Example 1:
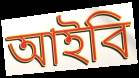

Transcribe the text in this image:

আইবি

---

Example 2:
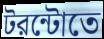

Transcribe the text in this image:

টরন্টোতে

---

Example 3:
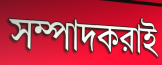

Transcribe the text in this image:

সম্পাদকরাই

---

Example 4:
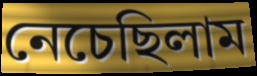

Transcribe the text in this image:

নেচেছিলাম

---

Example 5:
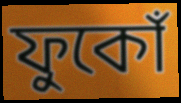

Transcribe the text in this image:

ফুকোঁ